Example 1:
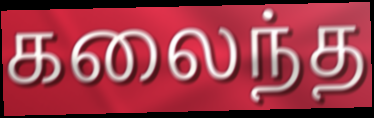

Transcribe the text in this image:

கலைந்த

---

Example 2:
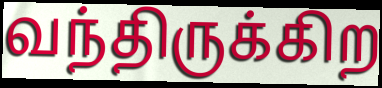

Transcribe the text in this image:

வந்திருக்கிற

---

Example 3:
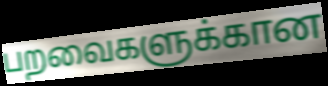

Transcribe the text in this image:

பறவைகளுக்கான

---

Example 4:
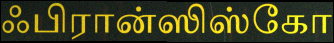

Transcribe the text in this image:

ஃபிரான்ஸிஸ்கோ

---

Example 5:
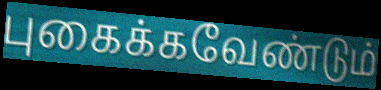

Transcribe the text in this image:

புகைக்கவேண்டும்